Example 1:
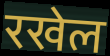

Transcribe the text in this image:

रखेल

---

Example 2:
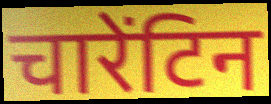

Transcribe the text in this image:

चारेंटिन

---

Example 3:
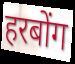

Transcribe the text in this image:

हरबोंग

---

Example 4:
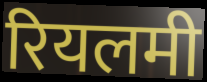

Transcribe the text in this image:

रियलमी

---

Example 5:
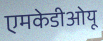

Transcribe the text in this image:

एमकेडीओयू